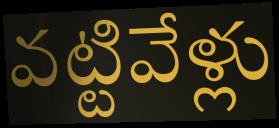
వట్టివేళ్లు